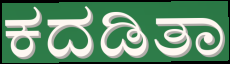
ಕದಡಿತಾ